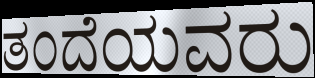
ತಂದೆಯವರು